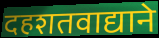
दहशतवाद्याने